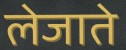
लेजाते